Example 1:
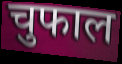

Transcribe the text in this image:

चुफाल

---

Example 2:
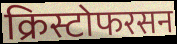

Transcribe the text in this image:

क्रिस्टोफरसन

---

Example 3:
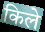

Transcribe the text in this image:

किले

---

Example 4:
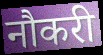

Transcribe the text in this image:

नौकरी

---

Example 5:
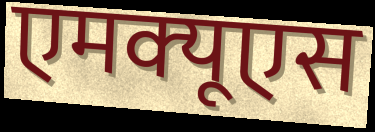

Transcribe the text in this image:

एमक्यूएस